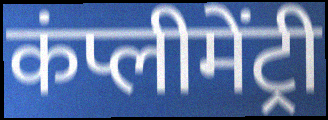
कंप्लीमेंट्री